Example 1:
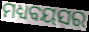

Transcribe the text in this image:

ମଧ୍ୟବୟସର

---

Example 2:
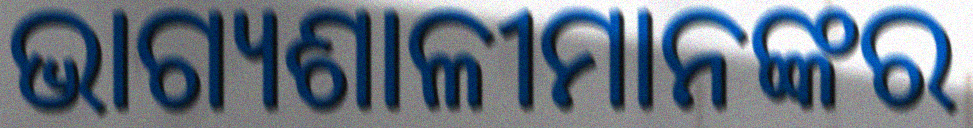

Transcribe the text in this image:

ଭାଗ୍ୟଶାଳୀମାନଙ୍କର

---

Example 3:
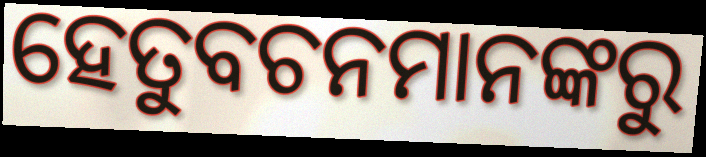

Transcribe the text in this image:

ହେତୁବଚନମାନଙ୍କରୁ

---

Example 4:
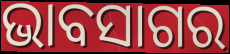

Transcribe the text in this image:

ଭାବସାଗର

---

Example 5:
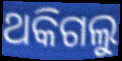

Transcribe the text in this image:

ଥକିଗଲୁ